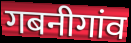
गबनीगांव